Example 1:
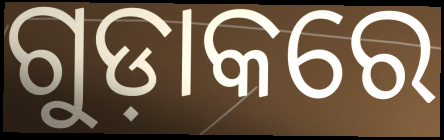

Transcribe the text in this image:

ଗୁଡ଼ାକରେ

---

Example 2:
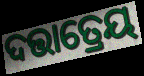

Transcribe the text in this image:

ଦତ୍ତାତ୍ରେୟ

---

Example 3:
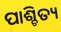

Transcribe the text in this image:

ପାଶ୍ଚିତ୍ୟ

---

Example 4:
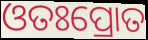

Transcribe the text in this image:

ଓତଃପ୍ରୋତ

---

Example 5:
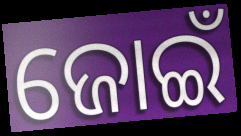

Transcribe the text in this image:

ଜୋଇଁ